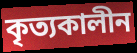
কৃত্যকালীন